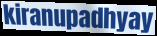
kiranupadhyay